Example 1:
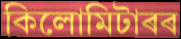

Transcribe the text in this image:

কিলোমিটাৰৰ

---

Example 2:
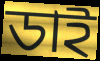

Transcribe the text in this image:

ডাই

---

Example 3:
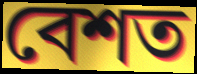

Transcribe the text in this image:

বেশত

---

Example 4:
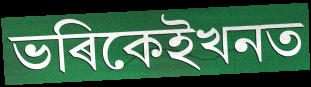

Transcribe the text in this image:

ভৰিকেইখনত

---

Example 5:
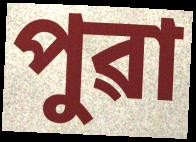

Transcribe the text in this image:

পুৱা